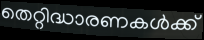
തെറ്റിദ്ധാരണകൾക്ക്